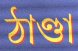
ঠাণ্ডা